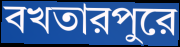
বখতারপুরে